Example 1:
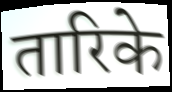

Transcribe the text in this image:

तारिके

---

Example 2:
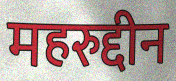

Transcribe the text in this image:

महरुद्दीन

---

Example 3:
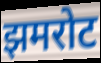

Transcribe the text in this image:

झमरोट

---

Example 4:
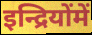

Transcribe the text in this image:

इन्द्रियोंमें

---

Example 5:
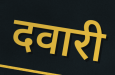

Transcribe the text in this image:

दवारी